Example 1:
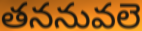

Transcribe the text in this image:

తననువలె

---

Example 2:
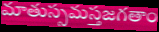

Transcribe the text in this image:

మాతుస్సమస్తజగతాం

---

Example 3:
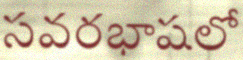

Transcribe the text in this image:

సవరభాషలో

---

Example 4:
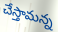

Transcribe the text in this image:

చేస్తామన్న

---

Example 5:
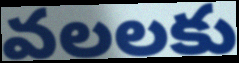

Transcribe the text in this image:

వలలకు